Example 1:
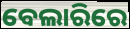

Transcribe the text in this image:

ବେଲାରିରେ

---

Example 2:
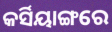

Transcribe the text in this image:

କର୍ସିୟାଙ୍ଗରେ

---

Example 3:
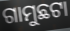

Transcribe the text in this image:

ଗାମୁଛଟା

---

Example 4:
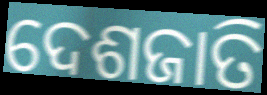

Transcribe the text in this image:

ଦେଶଜାତି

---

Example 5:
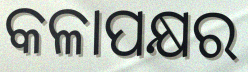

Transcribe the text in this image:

କଳାପକ୍ଷର